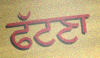
ਫੱਟਣਾ